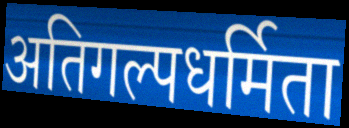
अतिगल्पधर्मिता